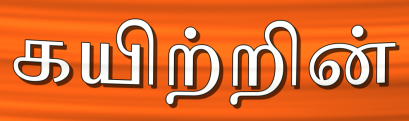
கயிற்றின்